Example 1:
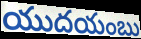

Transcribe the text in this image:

యుదయంబు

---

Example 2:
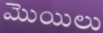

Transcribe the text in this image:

మొయిలు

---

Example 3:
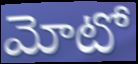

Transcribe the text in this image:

మోటో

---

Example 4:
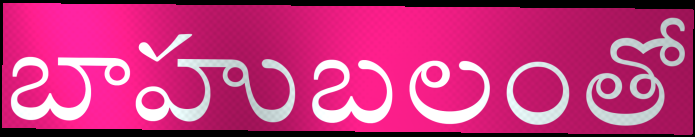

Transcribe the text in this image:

బాహుబలంతో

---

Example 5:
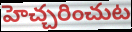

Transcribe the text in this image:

హెచ్చరించుట